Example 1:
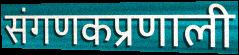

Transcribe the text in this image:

संगणकप्रणाली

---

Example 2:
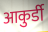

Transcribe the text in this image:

आकुर्डी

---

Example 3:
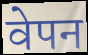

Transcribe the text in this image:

वेपन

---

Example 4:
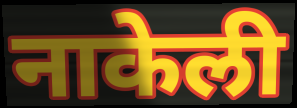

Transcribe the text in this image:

नाकेली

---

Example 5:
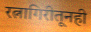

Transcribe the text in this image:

रत्नागिरीतूनही